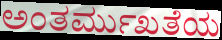
ಅಂತರ್ಮುಖತೆಯ